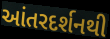
આંતરદર્શનથી